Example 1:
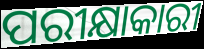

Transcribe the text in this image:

ପରୀକ୍ଷାକାରୀ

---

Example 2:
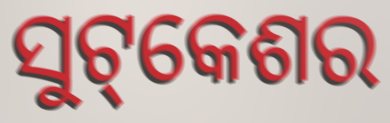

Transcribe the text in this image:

ସୁଟ୍‌କେଶର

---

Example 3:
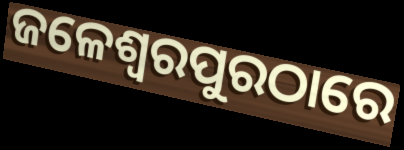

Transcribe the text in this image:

ଜଳେଶ୍ୱରପୁରଠାରେ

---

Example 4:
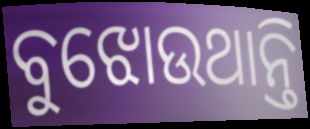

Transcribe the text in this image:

ବୁଝୋଉଥାନ୍ତି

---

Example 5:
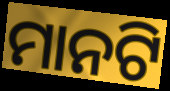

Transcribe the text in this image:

ମାନଟି